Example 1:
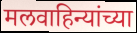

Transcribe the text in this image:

मलवाहिन्यांच्या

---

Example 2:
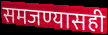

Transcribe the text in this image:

समजण्यासही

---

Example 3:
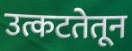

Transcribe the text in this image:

उत्कटतेतून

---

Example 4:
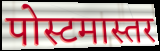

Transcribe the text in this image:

पोस्टमास्तर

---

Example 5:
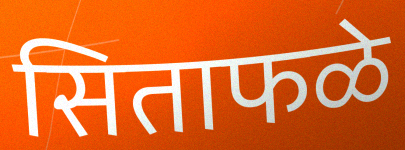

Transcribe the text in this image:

सिताफळे